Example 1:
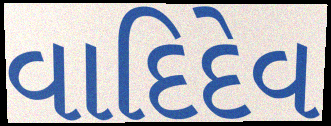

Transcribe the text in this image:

વાદિદેવ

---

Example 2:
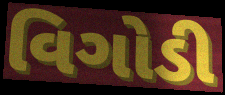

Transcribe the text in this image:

વિગોડી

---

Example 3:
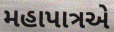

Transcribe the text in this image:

મહાપાત્રએ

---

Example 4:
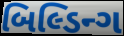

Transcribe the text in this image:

બિલ્ડિન્ગ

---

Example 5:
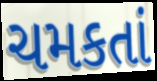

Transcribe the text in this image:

ચમકતાં